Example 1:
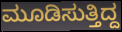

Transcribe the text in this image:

ಮೂಡಿಸುತ್ತಿದ್ದ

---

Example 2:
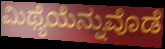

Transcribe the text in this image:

ಮಿಥ್ಯೆಯೆನ್ನುವೊಡೆ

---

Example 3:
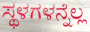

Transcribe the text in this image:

ಸ್ಥಳಗಳನ್ನೆಲ್ಲ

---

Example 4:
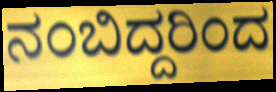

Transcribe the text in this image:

ನಂಬಿದ್ದರಿಂದ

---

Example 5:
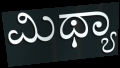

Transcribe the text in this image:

ಮಿಥ್ಯಾ